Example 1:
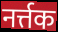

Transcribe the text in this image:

नर्त्तक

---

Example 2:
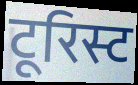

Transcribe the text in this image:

टूरिस्ट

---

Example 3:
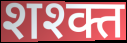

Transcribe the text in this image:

शश्क्त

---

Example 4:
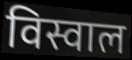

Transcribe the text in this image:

विस्वाल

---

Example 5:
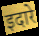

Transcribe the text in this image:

इदारे